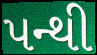
પન્થી